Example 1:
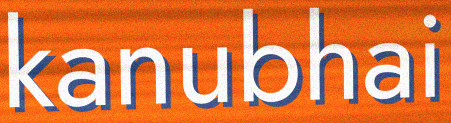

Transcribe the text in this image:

kanubhai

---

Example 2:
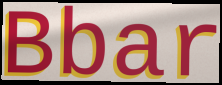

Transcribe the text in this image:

Bbar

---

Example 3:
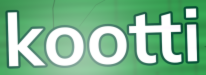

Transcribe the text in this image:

kootti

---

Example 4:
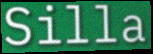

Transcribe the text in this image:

Silla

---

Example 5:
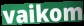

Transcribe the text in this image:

vaikom